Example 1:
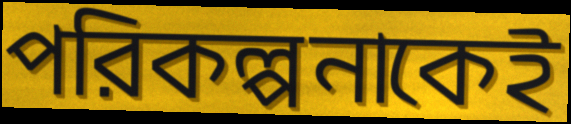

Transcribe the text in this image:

পরিকল্পনাকেই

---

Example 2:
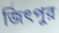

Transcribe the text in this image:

জিৎপুর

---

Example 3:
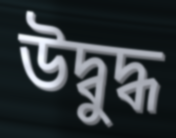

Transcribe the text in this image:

উদ্বুদ্ধ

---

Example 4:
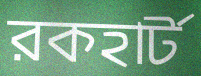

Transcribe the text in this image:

রকহার্ট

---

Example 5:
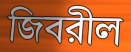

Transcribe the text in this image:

জিবরীল